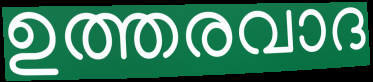
ഉത്തരവാദ